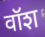
वॉश